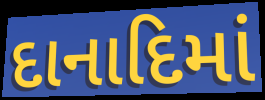
દાનાદિમાં